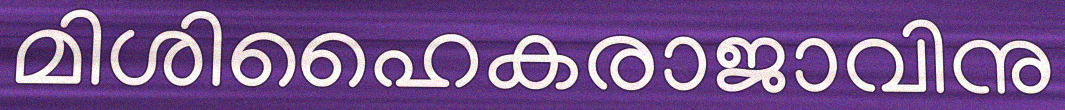
മിശിഹൈകരാജാവിനു